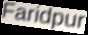
Faridpur